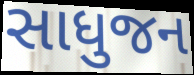
સાધુજન